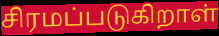
சிரமப்படுகிறாள்